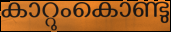
കാറ്റുംകൊണ്ടു